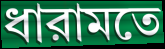
ধারামতে